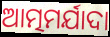
ଆତ୍ମମର୍ଯାଦା